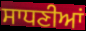
ਸਾਧਣੀਆਂ